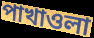
পাখাওলা